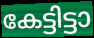
കേട്ടിട്ടാ